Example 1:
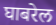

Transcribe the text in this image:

घाबरेल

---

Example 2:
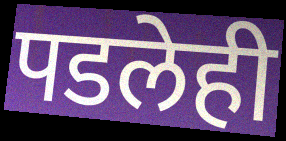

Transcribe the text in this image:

पडलेही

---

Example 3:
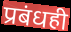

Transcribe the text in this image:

प्रबंधही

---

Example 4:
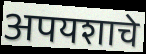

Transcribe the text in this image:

अपयशाचे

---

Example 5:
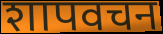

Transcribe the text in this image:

शापवचन